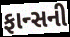
ફાન્સની